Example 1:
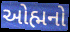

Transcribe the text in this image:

ઓહ્મનો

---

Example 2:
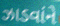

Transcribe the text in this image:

ઝાડવાંને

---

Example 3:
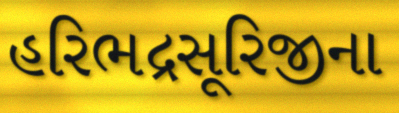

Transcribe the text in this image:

હરિભદ્રસૂરિજીના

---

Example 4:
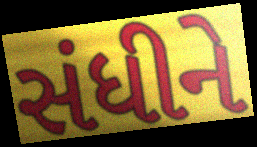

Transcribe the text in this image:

સંધીને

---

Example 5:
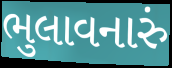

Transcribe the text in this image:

ભુલાવનારું